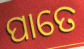
ପାତେ